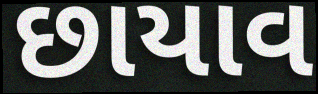
છાયાવ